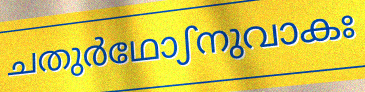
ചതുർഥോഽനുവാകഃ